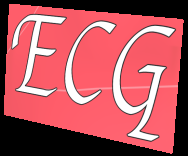
ECG